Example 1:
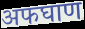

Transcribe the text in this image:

अफघाण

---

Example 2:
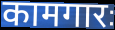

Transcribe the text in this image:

कामगारः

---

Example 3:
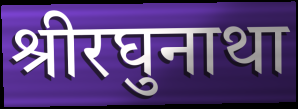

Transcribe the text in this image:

श्रीरघुनाथा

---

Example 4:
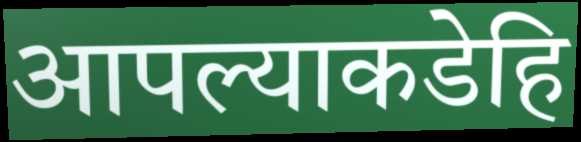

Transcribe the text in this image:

आपल्याकडेहि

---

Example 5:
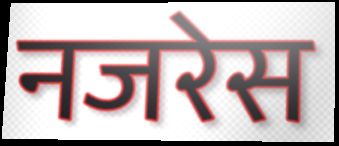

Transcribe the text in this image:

नजरेस